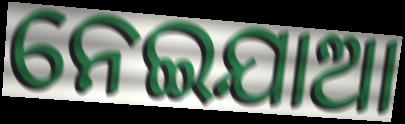
ନେଇଯାଆ